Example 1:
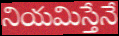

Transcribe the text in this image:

నియమిస్తేనే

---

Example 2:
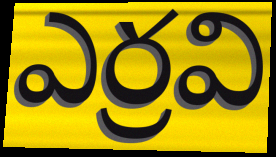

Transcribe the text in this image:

ఎర్రవి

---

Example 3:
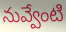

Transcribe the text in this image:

నువ్వేంటి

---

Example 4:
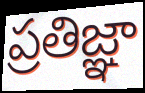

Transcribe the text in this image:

ప్రతిజ్ఞా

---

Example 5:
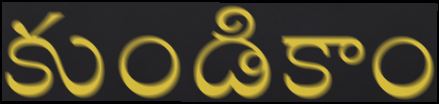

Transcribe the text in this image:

కుండికాం